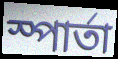
স্পার্তা